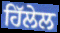
ਹਿੱਲੇਲ